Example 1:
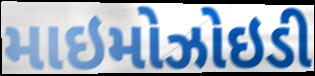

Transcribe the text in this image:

માઇમોઝોઇડી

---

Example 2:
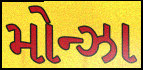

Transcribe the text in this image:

મોન્ઝા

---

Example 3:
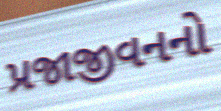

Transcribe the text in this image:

પ્રજાજીવનનો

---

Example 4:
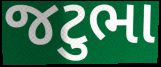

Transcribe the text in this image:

જટુભા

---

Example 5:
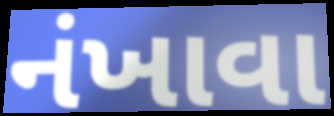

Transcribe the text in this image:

નંખાવા